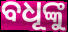
ବଧୂଙ୍କୁ